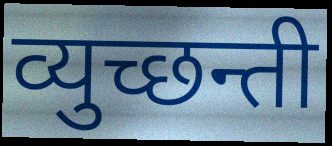
व्युच्छन्ती